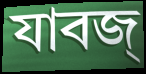
যাবজ্